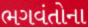
ભગવંતોના